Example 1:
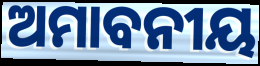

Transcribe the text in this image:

ଅମାବନୀୟ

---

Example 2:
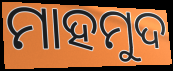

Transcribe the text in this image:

ମାହମୁଦ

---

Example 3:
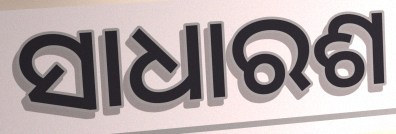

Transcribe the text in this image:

ସାଧାରଶ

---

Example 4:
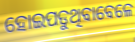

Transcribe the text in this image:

ହୋଇପଡୁଥିବାବେଳେ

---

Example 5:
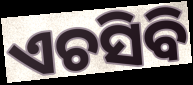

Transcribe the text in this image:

ଏଚସିବି